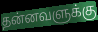
தன்னவளுக்கு